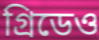
গ্রিডেও